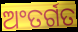
ଅଂତର୍ଗତ